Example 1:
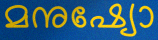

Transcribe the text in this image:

മനുഷ്യോ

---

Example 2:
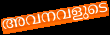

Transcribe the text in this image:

അവനവളുടെ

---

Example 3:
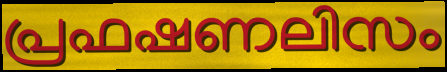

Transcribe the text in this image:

പ്രഫഷണലിസം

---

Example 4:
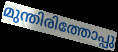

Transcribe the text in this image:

മുന്തിരിത്തോപ്പു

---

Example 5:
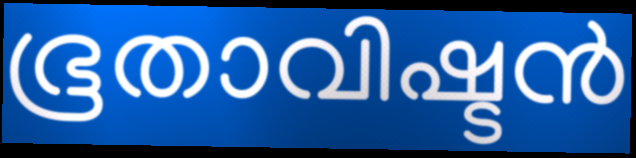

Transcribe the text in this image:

ഭൂതാവിഷ്ടൻ